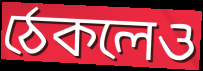
ঠেকলেও